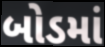
બોડમાં